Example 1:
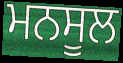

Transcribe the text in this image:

ਮਨਸੂਲ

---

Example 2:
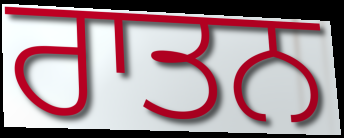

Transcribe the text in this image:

ਰਾਤਨ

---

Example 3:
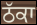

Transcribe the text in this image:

ਠੱਕਾ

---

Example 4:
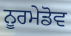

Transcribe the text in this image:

ਨੂਰਮੇਡੋਵ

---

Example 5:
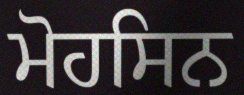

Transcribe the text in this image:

ਮੋਹਸਿਨ